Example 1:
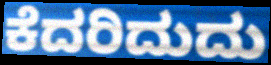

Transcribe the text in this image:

ಕೆದರಿದುದು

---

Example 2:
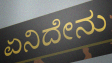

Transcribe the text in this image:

ಏನಿದೇನು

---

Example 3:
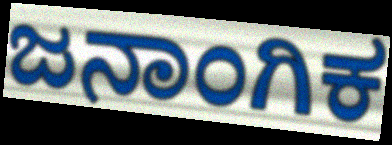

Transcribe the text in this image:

ಜನಾಂಗಿಕ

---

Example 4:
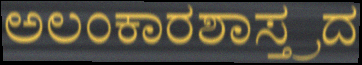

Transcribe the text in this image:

ಅಲಂಕಾರಶಾಸ್ತ್ರದ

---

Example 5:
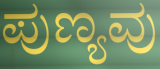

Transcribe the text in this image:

ಪುಣ್ಯವು